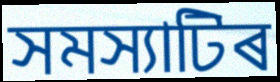
সমস্যাটিৰ